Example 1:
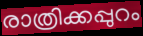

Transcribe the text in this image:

രാത്രിക്കപ്പുറം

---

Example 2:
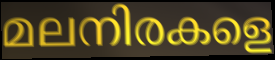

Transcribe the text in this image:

മലനിരകളെ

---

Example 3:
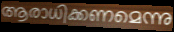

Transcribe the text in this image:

ആരാധിക്കണമെന്നു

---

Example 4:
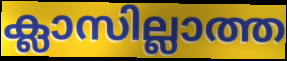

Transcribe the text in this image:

ക്ലാസില്ലാത്ത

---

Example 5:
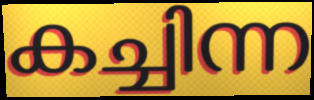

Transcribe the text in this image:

കച്ചിന്ന